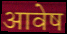
आवेष